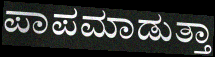
ಪಾಪಮಾಡುತ್ತಾ